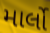
માર્લો